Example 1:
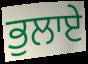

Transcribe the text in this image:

ਭੁਲਾਏ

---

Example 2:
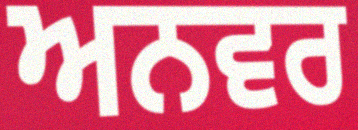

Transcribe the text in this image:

ਅਨਵਰ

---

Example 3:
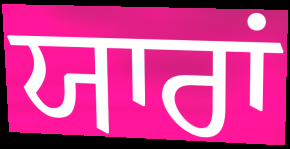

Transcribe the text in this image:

ਯਾਰਾਂ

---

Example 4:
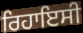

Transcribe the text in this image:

ਰਿਹਾਇਸੀ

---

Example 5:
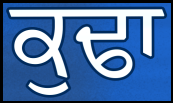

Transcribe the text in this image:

ਕੁਢਾ